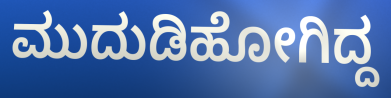
ಮುದುಡಿಹೋಗಿದ್ದ